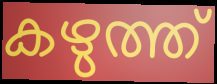
കഴുത്ത്